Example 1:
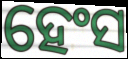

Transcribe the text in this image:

ହେଂସ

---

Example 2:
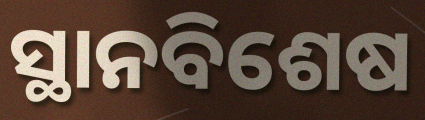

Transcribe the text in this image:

ସ୍ଥାନବିଶେଷ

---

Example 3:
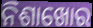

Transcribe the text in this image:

ନିଶାଖୋର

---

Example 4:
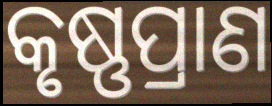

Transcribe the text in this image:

କୃଷ୍ଣପ୍ରାଣ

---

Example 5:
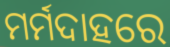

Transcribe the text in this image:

ମର୍ମଦାହରେ